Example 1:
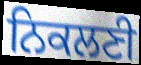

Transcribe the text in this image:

ਨਿਕਲਣੀ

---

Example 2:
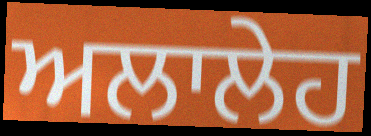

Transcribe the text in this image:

ਅਲਾਲੇਹ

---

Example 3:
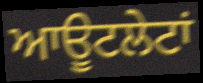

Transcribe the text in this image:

ਆਊਟਲੇਟਾਂ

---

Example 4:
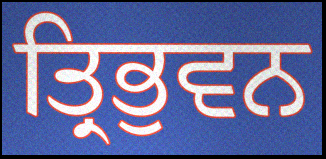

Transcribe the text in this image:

ਤ੍ਰਿਭੁਵਨ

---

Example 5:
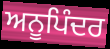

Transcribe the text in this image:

ਅਨੂਪਿੰਦਰ